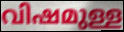
വിഷമുള്ള